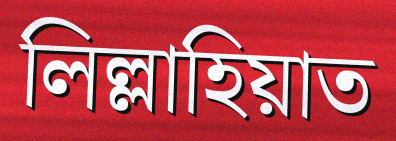
লিল্লাহিয়াত